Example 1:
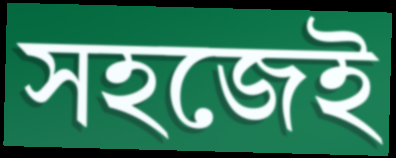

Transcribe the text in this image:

সহজেই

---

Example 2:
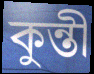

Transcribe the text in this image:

কুন্তী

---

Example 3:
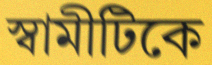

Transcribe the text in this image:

স্বামীটিকে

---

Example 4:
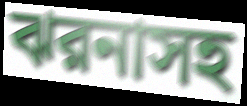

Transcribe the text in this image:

ঝরনাসহ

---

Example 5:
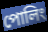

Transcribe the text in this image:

পোলিং